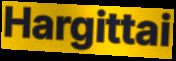
Hargittai